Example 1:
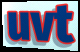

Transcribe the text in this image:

uvt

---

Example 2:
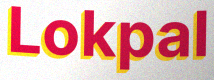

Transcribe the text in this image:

Lokpal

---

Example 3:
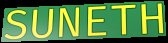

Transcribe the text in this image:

SUNETH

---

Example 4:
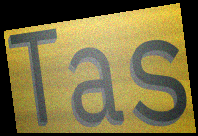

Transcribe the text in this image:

Tas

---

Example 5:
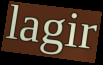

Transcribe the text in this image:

lagir